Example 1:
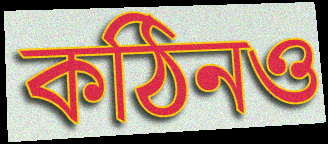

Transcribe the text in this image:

কঠিনও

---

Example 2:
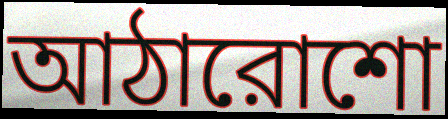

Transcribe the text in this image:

আঠারোশো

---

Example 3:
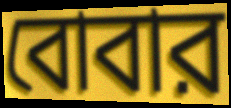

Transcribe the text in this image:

বোবার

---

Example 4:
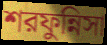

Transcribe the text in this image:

শরফুন্নিসা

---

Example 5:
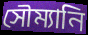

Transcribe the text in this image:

সৌম্যানি